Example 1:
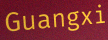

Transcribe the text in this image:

Guangxi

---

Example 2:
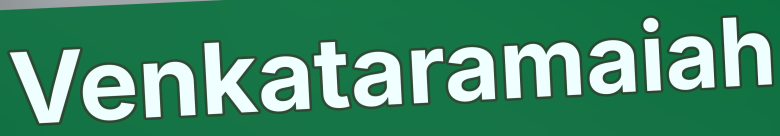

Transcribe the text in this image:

Venkataramaiah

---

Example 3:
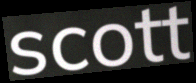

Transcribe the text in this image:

scott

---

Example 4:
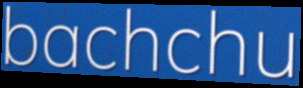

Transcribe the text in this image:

bachchu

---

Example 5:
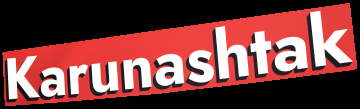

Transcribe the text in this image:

Karunashtak